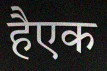
हैएक